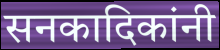
सनकादिकांनी